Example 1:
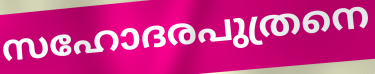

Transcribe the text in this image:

സഹോദരപുത്രനെ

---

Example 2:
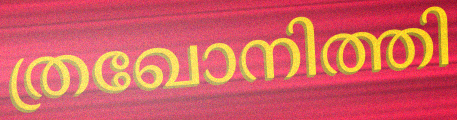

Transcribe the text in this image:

ത്രഖോനിത്തി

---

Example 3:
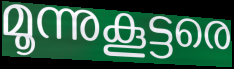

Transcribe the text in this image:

മൂന്നുകൂട്ടരെ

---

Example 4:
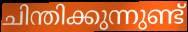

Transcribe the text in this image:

ചിന്തിക്കുന്നുണ്ട്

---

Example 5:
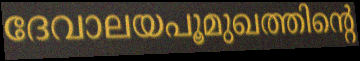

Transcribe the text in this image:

ദേവാലയപൂമുഖത്തിന്റെ